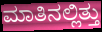
ಮಾತಿನಲ್ಲಿತ್ತು